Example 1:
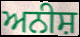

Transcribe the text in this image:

ਅਨੀਸ਼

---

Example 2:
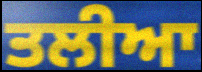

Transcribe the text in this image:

ਤਲੀਆ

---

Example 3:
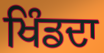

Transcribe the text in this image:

ਖਿੰਡਦਾ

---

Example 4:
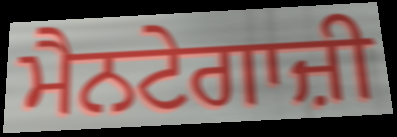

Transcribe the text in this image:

ਮੈਨਟੇਗਾਜ਼ੀ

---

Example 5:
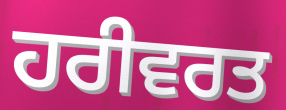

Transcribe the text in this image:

ਹਰੀਵਰਤ